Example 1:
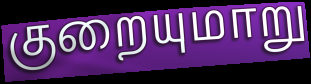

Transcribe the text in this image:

குறையுமாறு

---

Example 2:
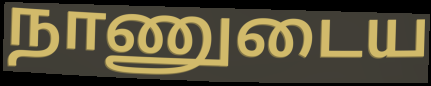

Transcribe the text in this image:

நாணுடைய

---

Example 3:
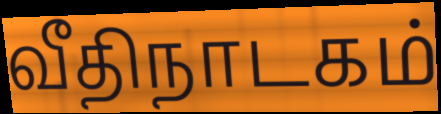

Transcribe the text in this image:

வீதிநாடகம்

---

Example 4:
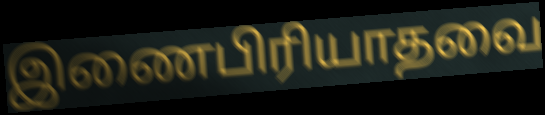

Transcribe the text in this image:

இணைபிரியாதவை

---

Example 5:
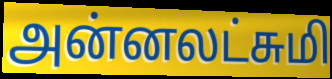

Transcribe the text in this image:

அன்னலட்சுமி